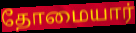
தோமையார்